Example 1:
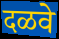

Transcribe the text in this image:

दळवे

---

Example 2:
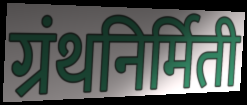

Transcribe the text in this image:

ग्रंथनिर्मिती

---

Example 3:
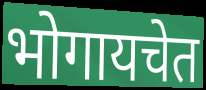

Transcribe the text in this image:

भोगायचेत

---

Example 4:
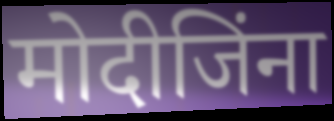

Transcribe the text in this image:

मोदीजिंना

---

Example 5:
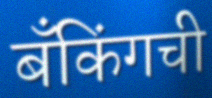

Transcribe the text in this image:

बँकिंगची